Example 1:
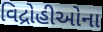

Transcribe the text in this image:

વિદ્રોહીઓના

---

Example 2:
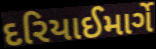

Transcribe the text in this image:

દરિયાઈમાર્ગે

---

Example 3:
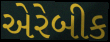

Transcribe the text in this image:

એરેબીક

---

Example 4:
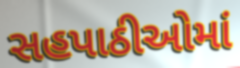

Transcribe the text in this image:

સહપાઠીઓમાં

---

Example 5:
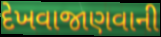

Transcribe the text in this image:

દેખવાજાણવાની